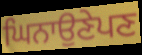
ਘਿਨਾਉਣੇਪਣ